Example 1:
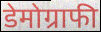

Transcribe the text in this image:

डेमोग्राफी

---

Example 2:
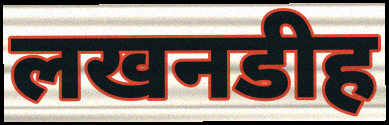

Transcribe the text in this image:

लखनडीह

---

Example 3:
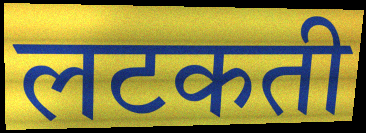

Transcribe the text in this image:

लटकती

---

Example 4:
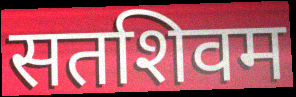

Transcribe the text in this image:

सतशिवम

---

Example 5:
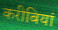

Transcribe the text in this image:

करीबियां